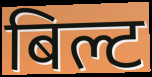
बिल्ट